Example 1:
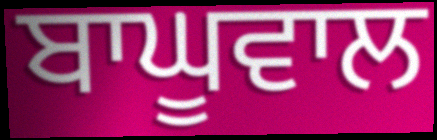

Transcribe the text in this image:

ਬਾਘੂਵਾਲ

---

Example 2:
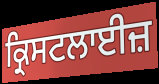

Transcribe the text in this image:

ਕ੍ਰਿਸਟਲਾਈਜ਼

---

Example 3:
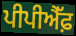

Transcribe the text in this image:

ਪੀਪੀਐੱਫ਼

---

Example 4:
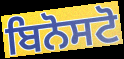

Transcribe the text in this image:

ਬਿਨੋਸਟੋ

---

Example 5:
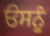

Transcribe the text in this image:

ੳਸਨੂੰ